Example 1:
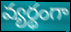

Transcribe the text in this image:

వ్యర్థంగా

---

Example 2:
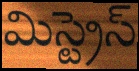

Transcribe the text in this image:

మిస్ట్రెస్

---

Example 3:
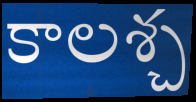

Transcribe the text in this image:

కాలశ్చ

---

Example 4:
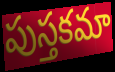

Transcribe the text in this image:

పుస్తకమా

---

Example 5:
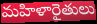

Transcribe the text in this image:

మహిళారైతులు